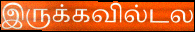
இருக்கவில்டல